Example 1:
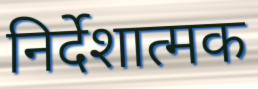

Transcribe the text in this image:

निर्देशात्मक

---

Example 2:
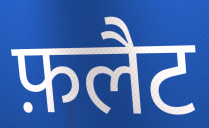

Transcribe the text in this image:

फ़लैट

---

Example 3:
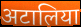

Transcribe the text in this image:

अटालिया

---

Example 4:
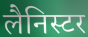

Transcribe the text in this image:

लैनिस्टर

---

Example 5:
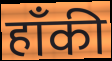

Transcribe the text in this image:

हॉंकी